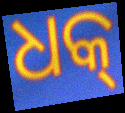
ଧକ୍